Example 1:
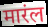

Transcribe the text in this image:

मारंल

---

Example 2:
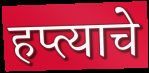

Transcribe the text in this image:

हप्त्याचे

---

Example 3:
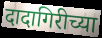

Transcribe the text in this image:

दादागिरीच्या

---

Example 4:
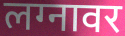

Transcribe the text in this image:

लग्नावर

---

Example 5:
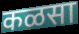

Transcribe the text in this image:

कळसा